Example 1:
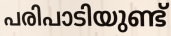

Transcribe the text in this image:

പരിപാടിയുണ്ട്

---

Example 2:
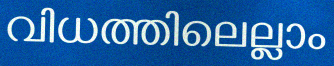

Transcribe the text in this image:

വിധത്തിലെല്ലാം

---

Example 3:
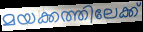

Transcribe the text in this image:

മയക്കത്തിലേക്ക്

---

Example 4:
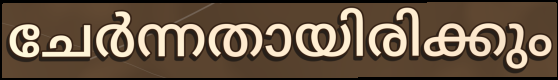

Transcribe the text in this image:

ചേർന്നതായിരിക്കും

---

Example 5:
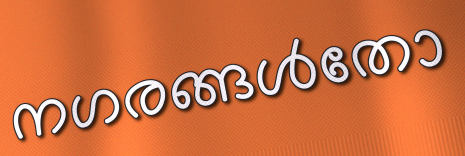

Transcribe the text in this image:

നഗരങ്ങൾതോ